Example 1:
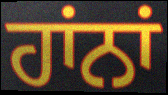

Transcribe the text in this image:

ਹਾਂਨਾਂ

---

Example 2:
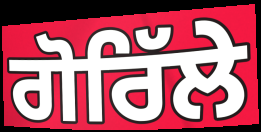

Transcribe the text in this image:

ਗੋਰਿੱਲੇ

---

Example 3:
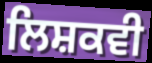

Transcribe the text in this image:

ਲਿਸ਼ਕਵੀ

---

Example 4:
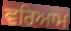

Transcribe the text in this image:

ਵਰਿਆਮ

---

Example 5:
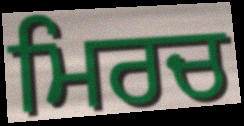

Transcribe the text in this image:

ਮਿਰਚ